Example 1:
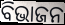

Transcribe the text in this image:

ବିଭାଜନ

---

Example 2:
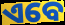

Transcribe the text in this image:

ଏବେ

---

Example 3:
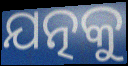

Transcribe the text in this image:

ଯତ୍ନକୁ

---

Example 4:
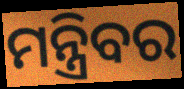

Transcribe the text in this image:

ମନ୍ତ୍ରିବର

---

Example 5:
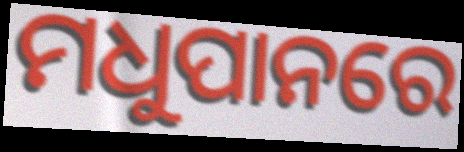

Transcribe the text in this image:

ମଧୁପାନରେ